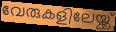
വേരുകളിലേയ്ക്ക്